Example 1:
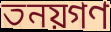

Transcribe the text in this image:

তনয়গণ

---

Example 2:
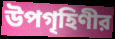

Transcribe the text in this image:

উপগৃহিণীর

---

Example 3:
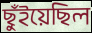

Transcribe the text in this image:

ছুঁইয়েছিল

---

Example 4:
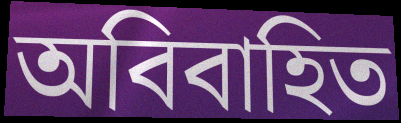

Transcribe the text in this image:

অবিবাহিত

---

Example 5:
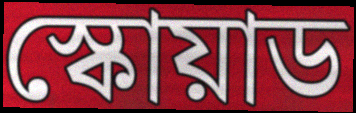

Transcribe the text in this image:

স্কোয়াড